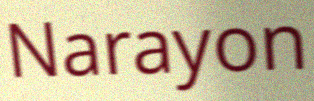
Narayon